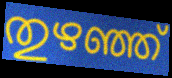
തുഴഞ്ഞ്